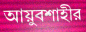
আয়ুবশাহীর